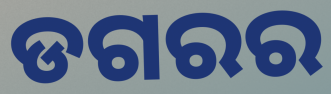
ଡଗରର